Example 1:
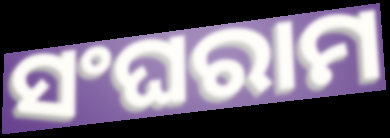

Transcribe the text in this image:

ସଂଘରାମ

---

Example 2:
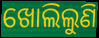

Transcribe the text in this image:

ଖୋଲିଲୁଣି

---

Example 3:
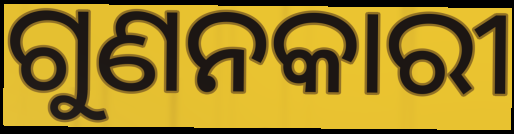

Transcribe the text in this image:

ଗୁଣନକାରୀ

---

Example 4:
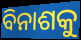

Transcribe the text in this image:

ବିନାଶକୁ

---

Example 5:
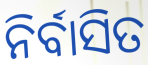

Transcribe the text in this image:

ନିର୍ବାସିତ